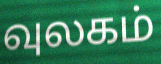
வுலகம்